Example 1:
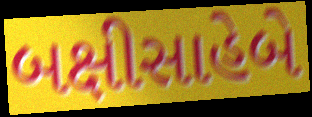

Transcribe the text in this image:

બક્ષીસાહેબે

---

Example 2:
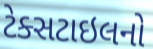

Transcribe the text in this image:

ટેક્સટાઇલનો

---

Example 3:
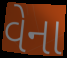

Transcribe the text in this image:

વેના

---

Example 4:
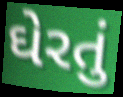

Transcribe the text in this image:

ઘેરતું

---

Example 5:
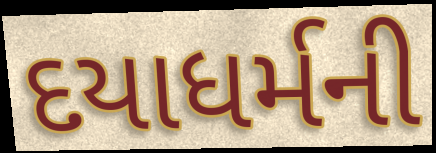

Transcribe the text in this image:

દયાધર્મની